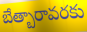
బేత్బారావరకు